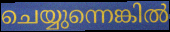
ചെയ്യുന്നെങ്കിൽ